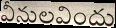
వీనులవిందు